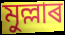
মুল্লাৰ